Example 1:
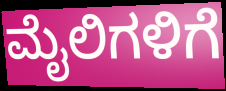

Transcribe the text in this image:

ಮೈಲಿಗಳಿಗೆ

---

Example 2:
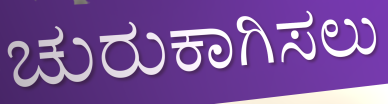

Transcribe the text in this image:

ಚುರುಕಾಗಿಸಲು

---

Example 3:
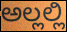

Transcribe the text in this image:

ಅಲ್ಲಲ್ಲಿ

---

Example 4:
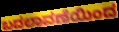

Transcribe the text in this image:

ಬದಲಾವಣೆಯಿಂದ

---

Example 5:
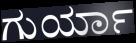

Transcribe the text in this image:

ಗುರ್ಯಾ